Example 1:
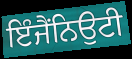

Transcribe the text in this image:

ਇੰਜੈਂਨਿਉਟੀ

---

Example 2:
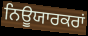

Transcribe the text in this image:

ਨਿਊਯਾਰਕਰਾਂ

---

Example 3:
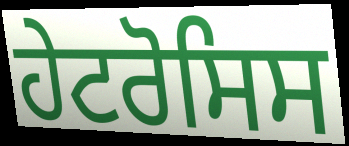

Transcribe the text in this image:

ਹੇਟਰੋਸਿਸ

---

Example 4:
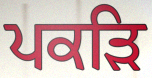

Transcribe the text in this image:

ਪਕੜਿ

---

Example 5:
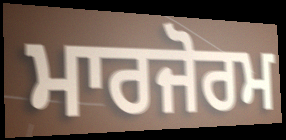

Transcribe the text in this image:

ਮਾਰਜੋਰਮ